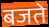
बजते